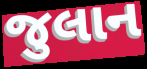
જુલાન